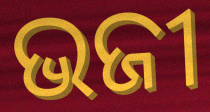
ଭଜୀ